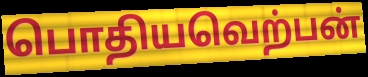
பொதியவெற்பன்